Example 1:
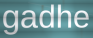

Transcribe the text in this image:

gadhe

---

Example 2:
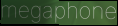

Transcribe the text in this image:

megaphone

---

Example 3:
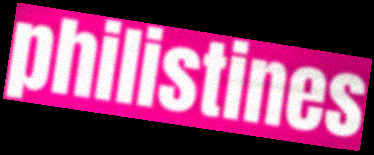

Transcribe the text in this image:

philistines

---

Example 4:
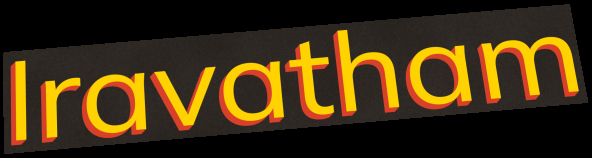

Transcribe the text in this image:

Iravatham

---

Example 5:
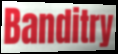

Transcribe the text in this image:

Banditry